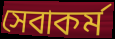
সেবাকর্ম